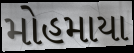
મોહમાયા